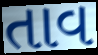
તાવ